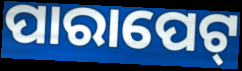
ପାରାପେଟ୍